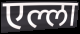
एल्ला